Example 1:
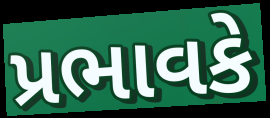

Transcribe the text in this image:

પ્રભાવકે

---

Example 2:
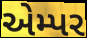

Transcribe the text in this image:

એમ્પર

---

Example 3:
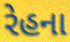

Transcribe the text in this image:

રેહના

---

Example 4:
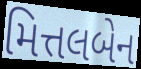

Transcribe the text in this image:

મિત્તલબેન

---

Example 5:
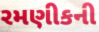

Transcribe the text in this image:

રમણીકની